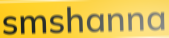
smshanna